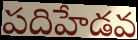
పదిహేడవ